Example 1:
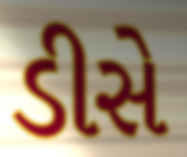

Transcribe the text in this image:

ડીસે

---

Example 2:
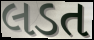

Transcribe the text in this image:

લડત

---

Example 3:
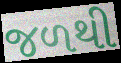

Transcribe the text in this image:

જળથી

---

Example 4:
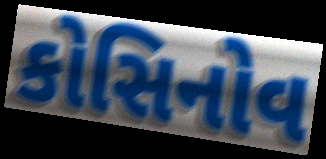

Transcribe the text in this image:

કોસિનોવ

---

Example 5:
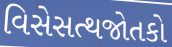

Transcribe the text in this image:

વિસેસત્થજોતકો